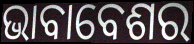
ଭାବାବେଶର